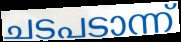
ചടപടാന്ന്